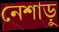
নেশাড়ু